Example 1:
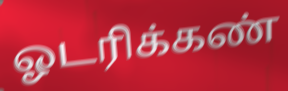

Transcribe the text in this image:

ஓடரிக்கண்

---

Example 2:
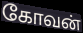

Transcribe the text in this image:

கோவன்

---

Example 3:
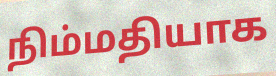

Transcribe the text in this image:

நிம்மதியாக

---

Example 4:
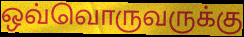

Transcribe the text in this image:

ஒவ்வொருவருக்கு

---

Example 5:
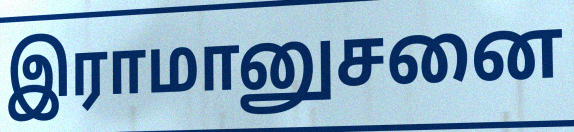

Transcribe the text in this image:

இராமானுசனை